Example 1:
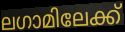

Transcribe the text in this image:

ലഗാമിലേക്ക്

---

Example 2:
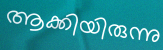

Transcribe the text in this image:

ആക്കിയിരുന്നു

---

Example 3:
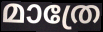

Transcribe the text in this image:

മാത്രേ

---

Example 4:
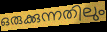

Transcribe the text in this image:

ഒരുക്കുന്നതിലും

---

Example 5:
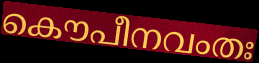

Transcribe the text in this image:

കൌപീനവംതഃ